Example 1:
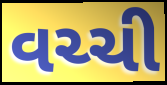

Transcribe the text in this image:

વચ્ચી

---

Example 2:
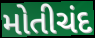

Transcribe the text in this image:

મોતીચંદ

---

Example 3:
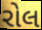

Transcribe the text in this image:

રોલ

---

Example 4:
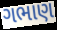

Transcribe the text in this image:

ગભાણ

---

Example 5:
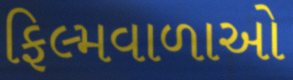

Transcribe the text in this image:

ફિલ્મવાળાઓ